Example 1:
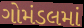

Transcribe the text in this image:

ગોમંડલમાં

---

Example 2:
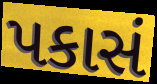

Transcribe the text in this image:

પકાસં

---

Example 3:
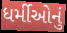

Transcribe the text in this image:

ધર્મીઓનું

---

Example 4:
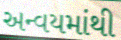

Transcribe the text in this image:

અન્વયમાંથી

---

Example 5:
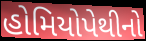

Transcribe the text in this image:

હોમિયોપેથીનો